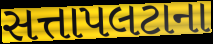
સત્તાપલટાના